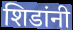
शिडांनी